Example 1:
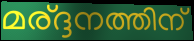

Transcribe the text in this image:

മര്ദ്ദനത്തിന്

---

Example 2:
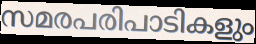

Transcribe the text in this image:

സമരപരിപാടികളും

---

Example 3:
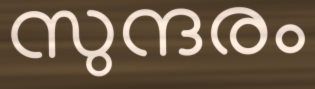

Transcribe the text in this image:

സുന്ദരം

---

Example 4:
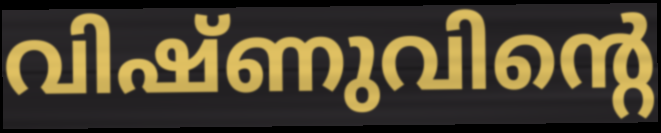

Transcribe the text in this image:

വിഷ്ണുവിന്റെ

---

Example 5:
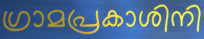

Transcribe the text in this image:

ഗ്രാമപ്രകാശിനി